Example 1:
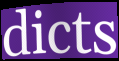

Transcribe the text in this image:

dicts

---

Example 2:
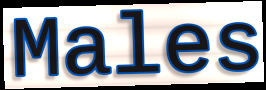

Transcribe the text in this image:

Males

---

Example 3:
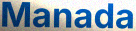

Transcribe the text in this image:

Manada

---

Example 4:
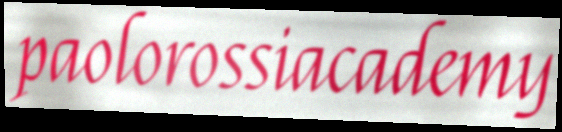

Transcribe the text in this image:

paolorossiacademy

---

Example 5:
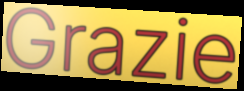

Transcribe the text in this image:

Grazie